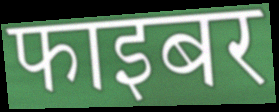
फाइबर